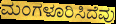
ಮಂಗಳೂರಿಸಿದೆವು